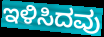
ಇಳಿಸಿದವು